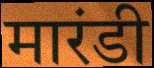
मारंडी